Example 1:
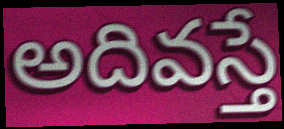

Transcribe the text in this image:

అదివస్తే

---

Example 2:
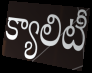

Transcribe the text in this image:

క్యాలిటీ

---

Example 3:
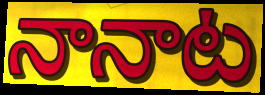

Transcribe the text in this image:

నానాట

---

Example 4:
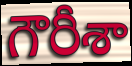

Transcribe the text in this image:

గౌరీశా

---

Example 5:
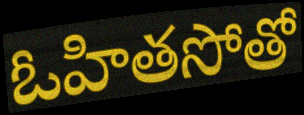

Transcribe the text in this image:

ఓహితసోతో